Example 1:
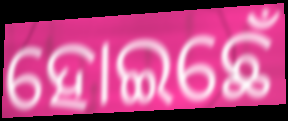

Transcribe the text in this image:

ହୋଇଛେଁ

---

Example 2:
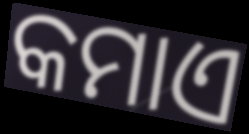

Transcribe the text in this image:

କମାଏ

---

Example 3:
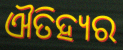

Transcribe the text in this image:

ଐତିହ୍ୟର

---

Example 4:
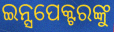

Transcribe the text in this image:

ଇନ୍ସପେକ୍ଟରଙ୍କୁ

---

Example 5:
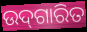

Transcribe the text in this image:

ଉଦ୍‌ଗାରିତ